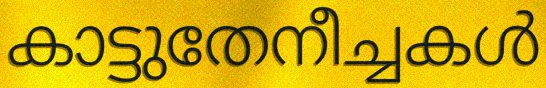
കാട്ടുതേനീച്ചകൾ